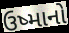
ઉષ્માનો